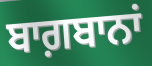
ਬਾਗ਼ਬਾਨਾਂ